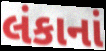
લંકાનાં